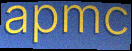
apmc